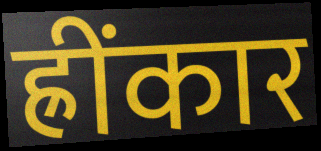
ह्रींकार